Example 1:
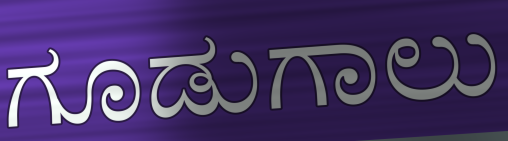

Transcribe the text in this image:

ಗೂಡುಗಾಲು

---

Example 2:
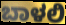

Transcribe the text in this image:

ಬಾಳಲಿ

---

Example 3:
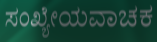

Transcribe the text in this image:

ಸಂಖ್ಯೇಯವಾಚಕ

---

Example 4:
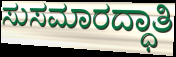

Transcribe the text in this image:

ಸುಸಮಾರದ್ಧಾತಿ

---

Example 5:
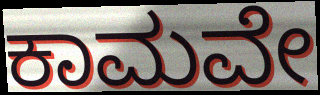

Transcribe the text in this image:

ಕಾಮವೇ